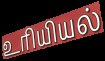
உரியியல்